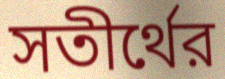
সতীর্থের